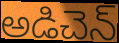
అడిచెన్